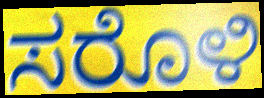
ಸರೊಳಿ